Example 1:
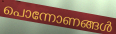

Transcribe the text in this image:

പൊന്നോണങ്ങൾ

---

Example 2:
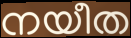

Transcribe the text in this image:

നയീത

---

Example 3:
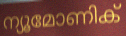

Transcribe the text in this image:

ന്യൂമോണിക്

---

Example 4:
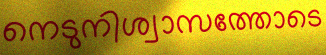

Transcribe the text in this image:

നെടുനിശ്വാസത്തോടെ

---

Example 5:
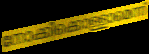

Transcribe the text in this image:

നോക്കിക്കൊള്ളാമെന്ന്